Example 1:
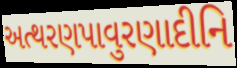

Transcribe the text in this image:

અત્થરણપાવુરણાદીનિ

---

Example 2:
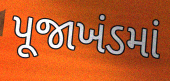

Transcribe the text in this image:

પૂજાખંડમાં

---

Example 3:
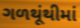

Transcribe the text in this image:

ગળથૂંથીમાં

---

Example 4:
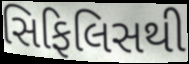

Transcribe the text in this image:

સિફિલિસથી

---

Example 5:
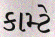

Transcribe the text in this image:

કામ્ટે